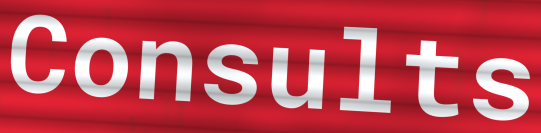
Consults